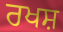
ਰਖਸ਼